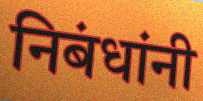
निबंधांनी